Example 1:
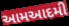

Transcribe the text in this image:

આમઆદમી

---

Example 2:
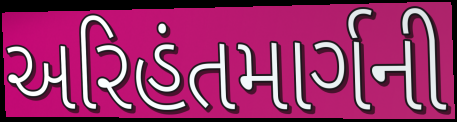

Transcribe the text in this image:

અરિહંતમાર્ગની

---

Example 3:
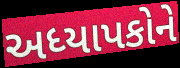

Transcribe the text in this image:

અધ્યાપકોને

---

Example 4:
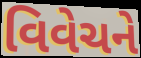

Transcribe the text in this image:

વિવેચને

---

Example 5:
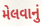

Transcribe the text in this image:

મેલવાનું